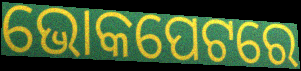
ଭୋକପେଟରେ